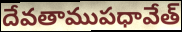
దేవతాముపధావేత్